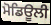
ਮੋਡਿਊਲੀ